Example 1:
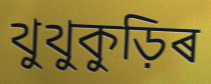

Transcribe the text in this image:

থুথুকুড়িৰ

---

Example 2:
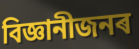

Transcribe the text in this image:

বিজ্ঞানীজনৰ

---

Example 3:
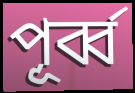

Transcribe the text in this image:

পূৰ্ব্ব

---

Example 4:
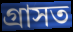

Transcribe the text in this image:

গ্ৰাসত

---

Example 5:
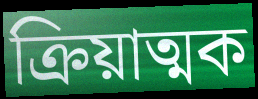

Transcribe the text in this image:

ক্ৰিয়াত্মক